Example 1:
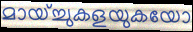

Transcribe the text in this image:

മായ്ച്ചുകളയുകയോ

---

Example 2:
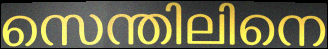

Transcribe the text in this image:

സെന്തിലിനെ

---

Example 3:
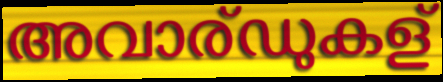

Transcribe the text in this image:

അവാര്ഡുകള്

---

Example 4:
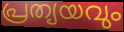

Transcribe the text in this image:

പ്രത്യയവും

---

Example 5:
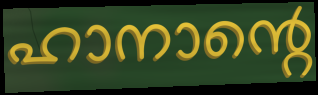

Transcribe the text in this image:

ഹാനാന്റെ